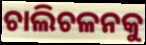
ଚାଲିଚଳନକୁ